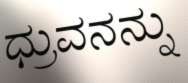
ಧ್ರುವನನ್ನು